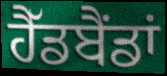
ਹੈੱਡਬੈਂਡਾਂ